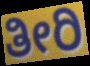
ತೀರಿ